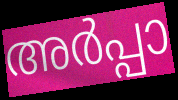
അർപ്പാ